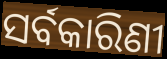
ସର୍ବକାରିଣୀ